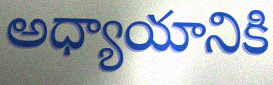
అధ్యాయానికి